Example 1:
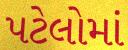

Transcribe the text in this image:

પટેલોમાં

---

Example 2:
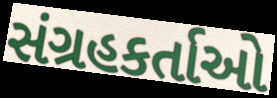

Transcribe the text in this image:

સંગ્રહકર્તાઓ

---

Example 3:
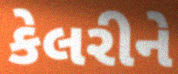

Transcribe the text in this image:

કેલરીને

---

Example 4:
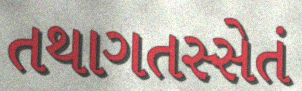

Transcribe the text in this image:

તથાગતસ્સેતં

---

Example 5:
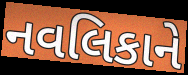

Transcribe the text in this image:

નવલિકાને